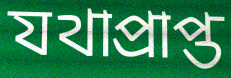
যথাপ্ৰাপ্ত